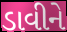
ડાવીને